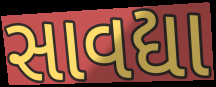
સાવદ્યા